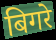
बिगरे